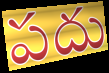
పదు